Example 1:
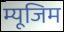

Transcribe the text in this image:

म्यूजिम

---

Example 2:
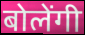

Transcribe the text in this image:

बोलेंगी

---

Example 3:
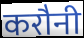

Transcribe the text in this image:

करौनी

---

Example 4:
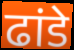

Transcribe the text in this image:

ढांडे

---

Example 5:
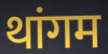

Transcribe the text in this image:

थांगम